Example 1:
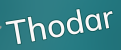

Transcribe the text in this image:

Thodar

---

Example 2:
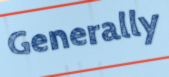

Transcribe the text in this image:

Generally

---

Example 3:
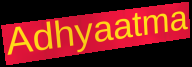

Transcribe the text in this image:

Adhyaatma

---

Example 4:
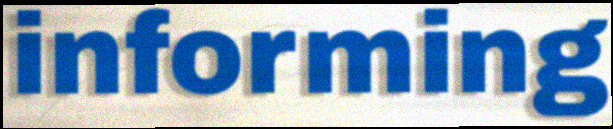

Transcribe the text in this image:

informing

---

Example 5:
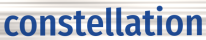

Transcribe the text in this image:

constellation